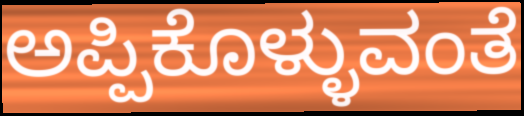
ಅಪ್ಪಿಕೊಳ್ಳುವಂತೆ